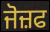
ਜੋਜ਼ਫ